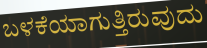
ಬಳಕೆಯಾಗುತ್ತಿರುವುದು